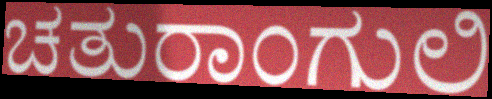
ಚತುರಾಂಗುಲಿ